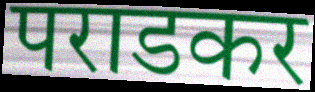
पराडकर